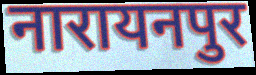
नारायनपुर